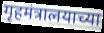
गृहमंत्रालयाच्या